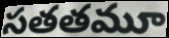
సతతమూ